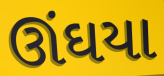
ઊંઘયા